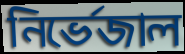
নির্ভেজাল